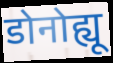
डोनोह्यू